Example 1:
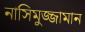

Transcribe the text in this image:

নাসিমুজ্জামান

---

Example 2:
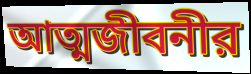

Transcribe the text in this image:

আত্মজীবনীর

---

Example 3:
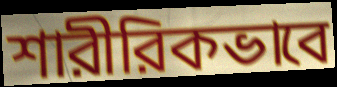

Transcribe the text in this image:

শারীরিকভাবে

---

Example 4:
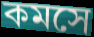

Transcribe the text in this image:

কমসে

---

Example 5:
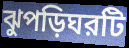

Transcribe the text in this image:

ঝুপড়িঘরটি